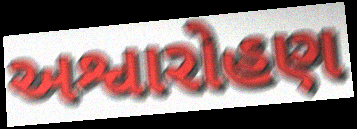
અશ્વારોહણ